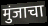
मुंजाचा